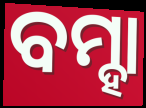
ବମ୍ହା